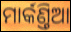
ମାର୍କଣ୍ତିଆ